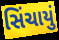
સિંચાયું